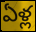
ఏళ్ల